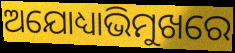
ଅଯୋଧ୍ୟାଭିମୁଖରେ